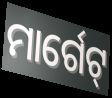
ମାର୍ଗେଟ୍